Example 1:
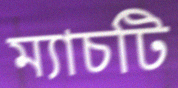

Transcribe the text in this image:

ম্যাচটি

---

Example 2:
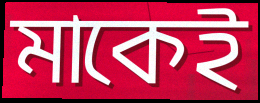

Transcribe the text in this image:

মাকেই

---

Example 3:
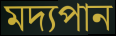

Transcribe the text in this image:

মদ্যপান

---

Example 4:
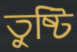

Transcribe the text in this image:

তুষ্টি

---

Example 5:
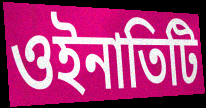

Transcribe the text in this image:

ওইনাতিটি